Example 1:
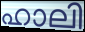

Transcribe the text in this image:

ഹാലി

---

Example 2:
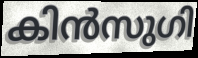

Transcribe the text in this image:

കിൻസുഗി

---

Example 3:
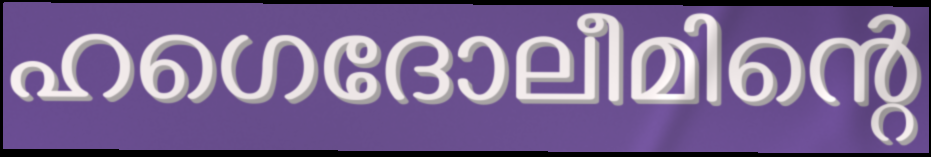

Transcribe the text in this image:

ഹഗെദോലീമിന്റെ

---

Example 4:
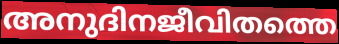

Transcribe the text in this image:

അനുദിനജീവിതത്തെ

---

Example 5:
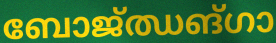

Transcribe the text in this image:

ബോജ്ഝങ്ഗാ